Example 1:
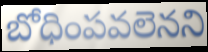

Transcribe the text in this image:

బోధింపవలెనని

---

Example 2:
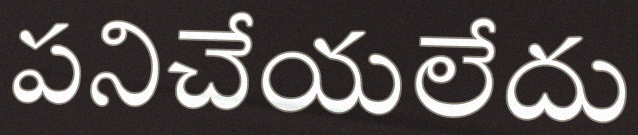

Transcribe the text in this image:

పనిచేయలేదు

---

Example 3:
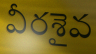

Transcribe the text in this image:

వీరశైవ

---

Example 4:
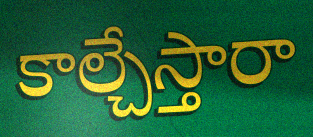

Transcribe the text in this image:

కాల్చేస్తారా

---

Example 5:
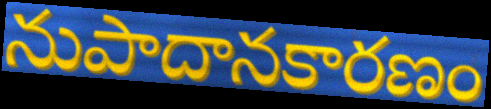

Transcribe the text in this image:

నుపాదానకారణం